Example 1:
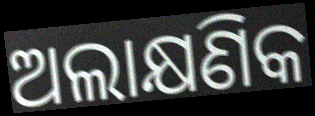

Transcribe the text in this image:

ଅଲାକ୍ଷଣିକ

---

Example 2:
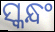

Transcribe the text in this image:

ସ୍କନ୍ଧଂ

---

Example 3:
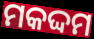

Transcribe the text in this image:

ମକଦ୍ଦମ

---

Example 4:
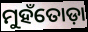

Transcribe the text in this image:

ମୁହଁତୋଡ଼ା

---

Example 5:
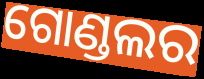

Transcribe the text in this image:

ଗୋଣ୍ଡଲର